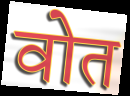
वोत